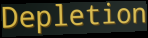
Depletion